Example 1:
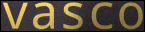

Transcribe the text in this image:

vasco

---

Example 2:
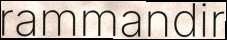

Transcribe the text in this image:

rammandir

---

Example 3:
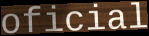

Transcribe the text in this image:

oficial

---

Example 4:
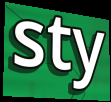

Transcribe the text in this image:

sty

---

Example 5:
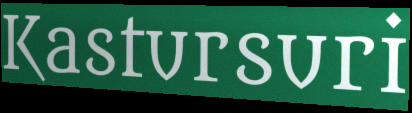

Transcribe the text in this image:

Kastursuri